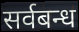
सर्वबन्ध